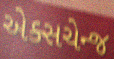
એક્સચેન્જ